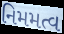
નિમમત્વ